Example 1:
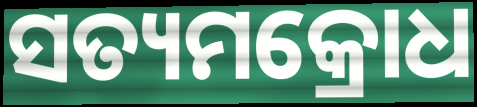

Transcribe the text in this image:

ସତ୍ୟମକ୍ରୋଧ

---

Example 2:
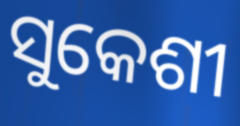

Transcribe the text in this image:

ସୁକେଶୀ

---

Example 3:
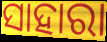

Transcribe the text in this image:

ସାହାରା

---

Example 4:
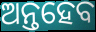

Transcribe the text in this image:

ଅନ୍ତହେବ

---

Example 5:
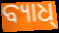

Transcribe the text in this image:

ବ୍ୟାଧ୍